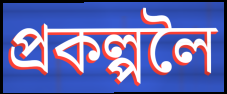
প্ৰকল্পলৈ